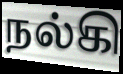
நல்கி